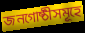
জনগোষ্ঠীসমূহে